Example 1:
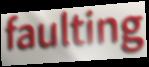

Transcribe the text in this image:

faulting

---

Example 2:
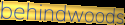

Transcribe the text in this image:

behindwoods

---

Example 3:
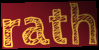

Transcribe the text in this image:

rath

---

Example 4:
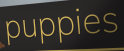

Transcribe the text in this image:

puppies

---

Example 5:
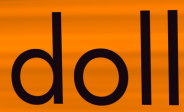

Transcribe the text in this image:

doll